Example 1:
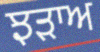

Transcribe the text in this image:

ਝੜਾਅ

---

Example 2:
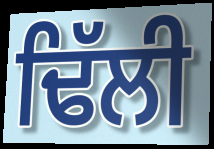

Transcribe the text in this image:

ਢਿੱਲੀ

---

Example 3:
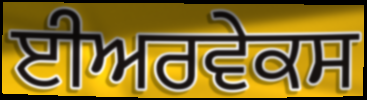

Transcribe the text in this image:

ਈਅਰਵੇਕਸ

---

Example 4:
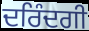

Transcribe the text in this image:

ਦਰਿੰਦਗੀ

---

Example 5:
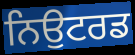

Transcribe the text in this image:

ਨਿਉਟਰਡ